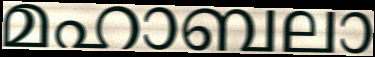
മഹാബലാ